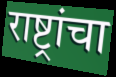
राष्ट्रांचा